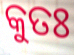
କୁତଃ